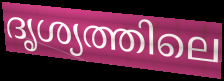
ദൃശ്യത്തിലെ